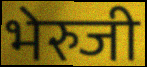
भेरुजी